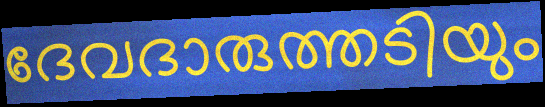
ദേവദാരുത്തടിയും